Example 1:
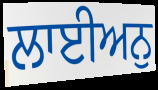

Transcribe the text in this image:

ਲਾਈਅਨੁ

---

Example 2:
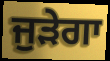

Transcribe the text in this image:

ਜੁੜੇਗਾ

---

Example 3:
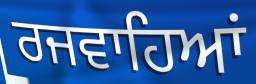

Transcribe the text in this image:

ਰਜਵਾਹਿਆਂ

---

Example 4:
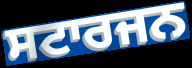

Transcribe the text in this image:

ਸਟਾਰਜਨ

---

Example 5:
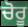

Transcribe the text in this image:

ਚੋਰੂ